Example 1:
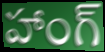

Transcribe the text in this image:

హాంగ్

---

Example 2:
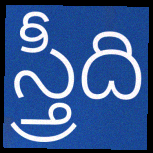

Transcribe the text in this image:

స్త్రీది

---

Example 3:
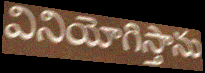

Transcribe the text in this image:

వినియోగిస్తాను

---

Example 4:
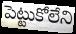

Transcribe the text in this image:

పెట్టుకోలేని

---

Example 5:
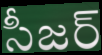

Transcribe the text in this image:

సీజర్